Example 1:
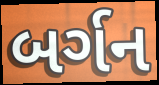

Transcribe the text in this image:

બર્ગન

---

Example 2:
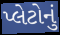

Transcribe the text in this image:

પ્લેટોનું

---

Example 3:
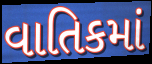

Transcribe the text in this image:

વાતિકમાં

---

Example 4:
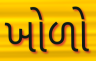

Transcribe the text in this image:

ખોળો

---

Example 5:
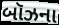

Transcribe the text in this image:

બૉઝના